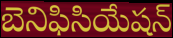
బెనిఫిసియేషన్